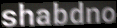
shabdno